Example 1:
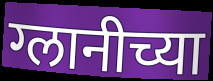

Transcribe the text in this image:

ग्लानीच्या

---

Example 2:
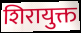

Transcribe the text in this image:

शिरायुक्त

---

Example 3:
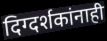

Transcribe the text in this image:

दिग्दर्शकांनाही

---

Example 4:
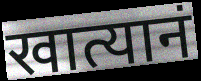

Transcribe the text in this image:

खात्यानं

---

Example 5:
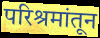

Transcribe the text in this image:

परिश्रमांतून